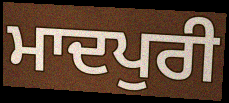
ਮਾਦਪੁਰੀ